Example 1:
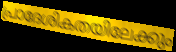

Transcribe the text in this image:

പ്രാദേശികതയിലേക്കും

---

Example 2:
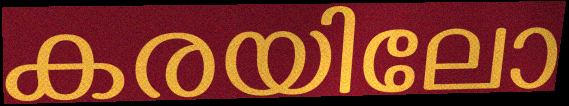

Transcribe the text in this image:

കരയിലോ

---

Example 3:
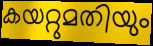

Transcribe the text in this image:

കയറ്റുമതിയും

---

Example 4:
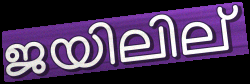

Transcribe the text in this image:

ജയിലില്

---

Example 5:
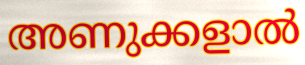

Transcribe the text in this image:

അണുക്കളാൽ